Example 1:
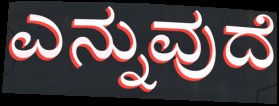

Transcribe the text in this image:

ಎನ್ನುವುದೆ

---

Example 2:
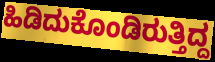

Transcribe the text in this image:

ಹಿಡಿದುಕೊಂಡಿರುತ್ತಿದ್ದ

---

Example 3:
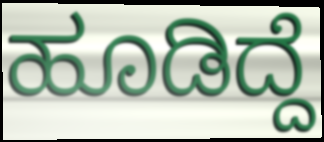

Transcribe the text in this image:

ಹೂಡಿದ್ದೆ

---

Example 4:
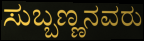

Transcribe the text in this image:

ಸುಬ್ಬಣ್ಣನವರು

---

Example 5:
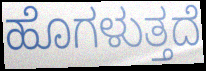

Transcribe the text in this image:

ಹೊಗಳುತ್ತದೆ